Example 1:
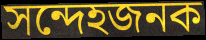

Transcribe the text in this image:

সন্দেহজনক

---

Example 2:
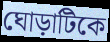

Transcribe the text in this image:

ঘোড়াটিকে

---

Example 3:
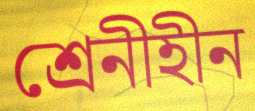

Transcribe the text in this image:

শ্রেনীহীন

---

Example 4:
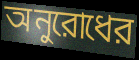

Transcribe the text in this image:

অনুরোধের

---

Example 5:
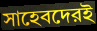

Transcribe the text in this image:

সাহেবদেরই